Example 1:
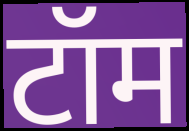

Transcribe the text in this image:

टॉम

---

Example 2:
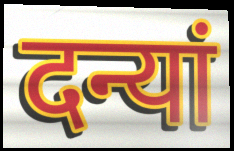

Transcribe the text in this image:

दन्यां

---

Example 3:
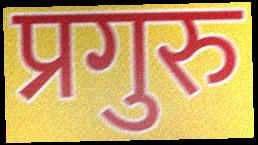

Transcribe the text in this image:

प्रगुरु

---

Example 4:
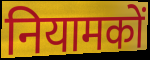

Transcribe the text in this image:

नियामकों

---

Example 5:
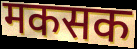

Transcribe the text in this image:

मकसक